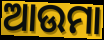
ଆଉମା